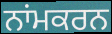
ਨਾਂਮਕਰਨ